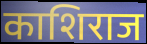
काशिराज